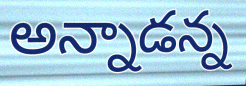
అన్నాడన్న